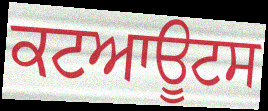
ਕਟਆਊਟਸ